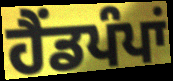
ਹੈਂਡਪੰਪਾਂ